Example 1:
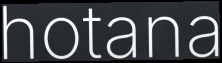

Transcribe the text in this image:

hotana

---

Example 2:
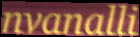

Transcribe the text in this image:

nvanalli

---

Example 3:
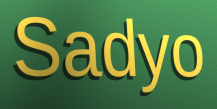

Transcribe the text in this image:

Sadyo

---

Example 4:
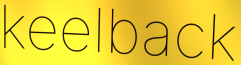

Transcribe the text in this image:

keelback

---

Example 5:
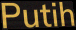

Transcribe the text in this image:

Putih